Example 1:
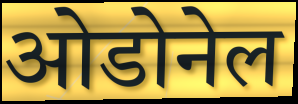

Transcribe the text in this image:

ओडोनेल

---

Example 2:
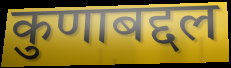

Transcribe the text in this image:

कुणाबद्दल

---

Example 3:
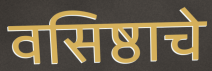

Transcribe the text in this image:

वसिष्ठाचे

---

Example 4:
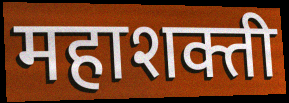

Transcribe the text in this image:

महाशक्‍ती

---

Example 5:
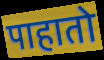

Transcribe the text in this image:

पाहातो